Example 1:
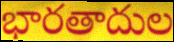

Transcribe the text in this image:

భారతాదుల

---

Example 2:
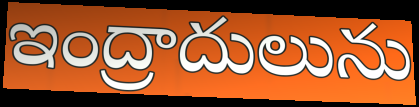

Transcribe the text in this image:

ఇంద్రాదులును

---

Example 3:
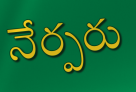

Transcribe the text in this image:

నేర్పరు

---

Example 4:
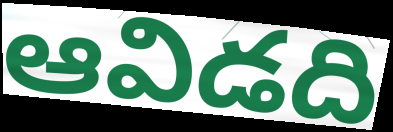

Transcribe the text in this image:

ఆవిడది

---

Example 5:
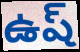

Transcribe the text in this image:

ఉష్